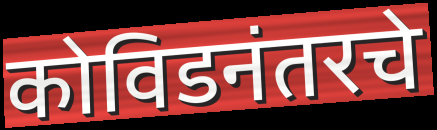
कोविडनंतरचे